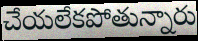
చేయలేకపోతున్నారు